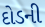
દોડની